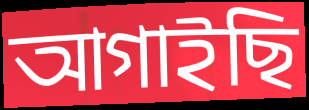
আগাইছি